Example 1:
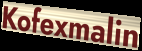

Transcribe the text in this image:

Kofexmalin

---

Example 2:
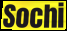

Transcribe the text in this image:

Sochi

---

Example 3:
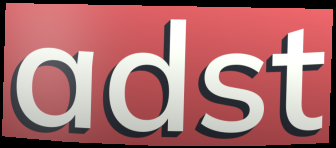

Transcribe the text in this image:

adst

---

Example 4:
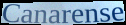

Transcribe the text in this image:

Canarense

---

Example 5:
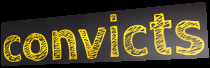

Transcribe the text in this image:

convicts